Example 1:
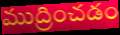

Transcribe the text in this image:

ముద్రించడం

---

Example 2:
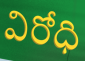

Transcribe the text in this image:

విరోధి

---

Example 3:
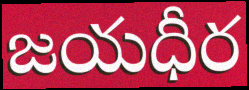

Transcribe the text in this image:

జయధీర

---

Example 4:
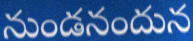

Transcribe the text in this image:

నుండనందున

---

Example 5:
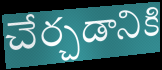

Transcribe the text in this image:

చేర్చడానికి